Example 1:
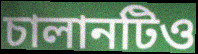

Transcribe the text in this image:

চালানটিও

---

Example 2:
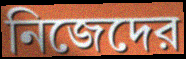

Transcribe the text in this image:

নিজেদের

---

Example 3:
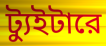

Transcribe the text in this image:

ট্যুইটারে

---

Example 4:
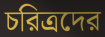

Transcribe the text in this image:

চরিত্রদের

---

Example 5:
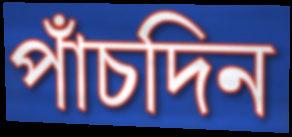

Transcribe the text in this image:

পাঁচদিন